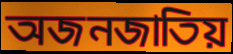
অজনজাতিয়